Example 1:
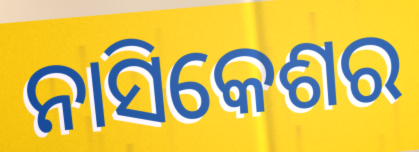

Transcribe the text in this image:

ନାସିକେଶର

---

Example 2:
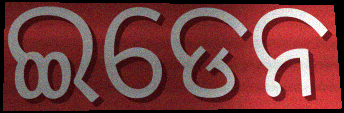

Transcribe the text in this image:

ଇଡେନ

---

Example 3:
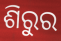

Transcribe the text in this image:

ଶିରୁର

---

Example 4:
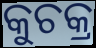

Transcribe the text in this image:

କୁଚକ୍ର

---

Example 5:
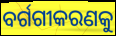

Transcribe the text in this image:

ବର୍ଗଗୀକରଣକୁ